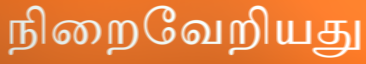
நிறைவேறியது